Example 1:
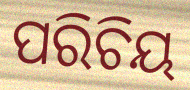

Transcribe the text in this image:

ପରିଚିୟ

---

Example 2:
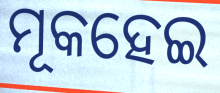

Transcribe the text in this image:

ମୂକହେଇ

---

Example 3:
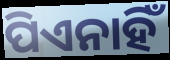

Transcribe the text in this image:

ପିଏନାହିଁ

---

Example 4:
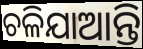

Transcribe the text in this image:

ଚଳିଯାଆନ୍ତି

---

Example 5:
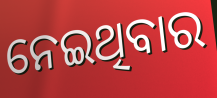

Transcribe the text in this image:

ନେଇଥିବାର